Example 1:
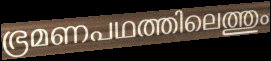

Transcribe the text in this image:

ഭ്രമണപഥത്തിലെത്തും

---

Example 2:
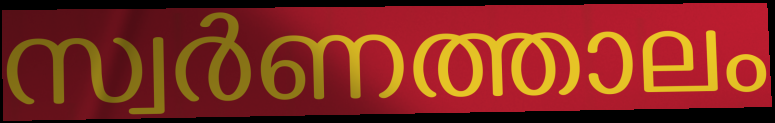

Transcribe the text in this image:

സ്വർണത്താലം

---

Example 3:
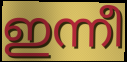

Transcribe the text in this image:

ഇന്നീ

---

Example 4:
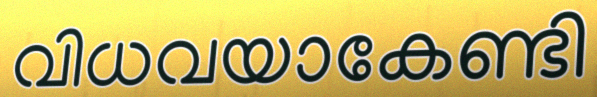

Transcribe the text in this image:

വിധവയാകേണ്ടി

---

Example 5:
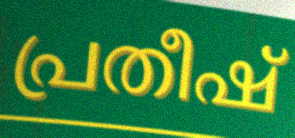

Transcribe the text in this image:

പ്രതീഷ്